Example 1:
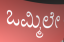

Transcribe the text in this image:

ಒಮ್ಮಿಲೇ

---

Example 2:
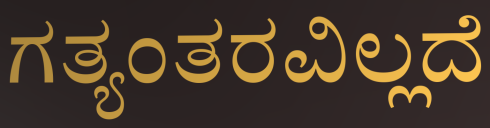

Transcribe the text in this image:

ಗತ್ಯಂತರವಿಲ್ಲದೆ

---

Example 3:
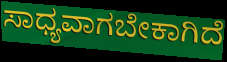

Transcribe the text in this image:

ಸಾಧ್ಯವಾಗಬೇಕಾಗಿದೆ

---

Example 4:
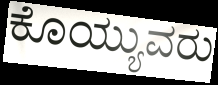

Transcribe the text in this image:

ಕೊಯ್ಯುವರು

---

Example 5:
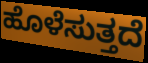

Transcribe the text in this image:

ಹೊಳೆಸುತ್ತದೆ